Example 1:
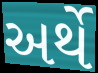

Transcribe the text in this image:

અર્થે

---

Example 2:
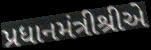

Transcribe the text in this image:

પ્રધાનમંત્રીશ્રીએ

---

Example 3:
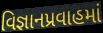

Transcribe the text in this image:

વિજ્ઞાનપ્રવાહમાં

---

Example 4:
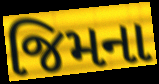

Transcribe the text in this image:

જિમના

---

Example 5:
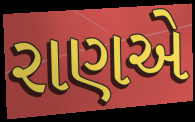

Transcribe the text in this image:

રાણએ